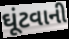
ઘૂંટવાની